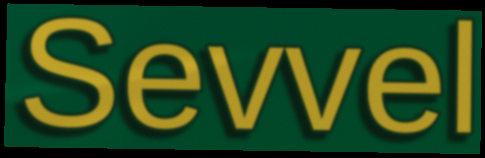
Sevvel